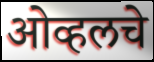
ओव्हलचे